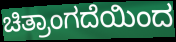
ಚಿತ್ರಾಂಗದೆಯಿಂದ